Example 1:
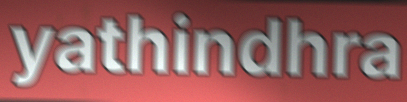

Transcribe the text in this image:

yathindhra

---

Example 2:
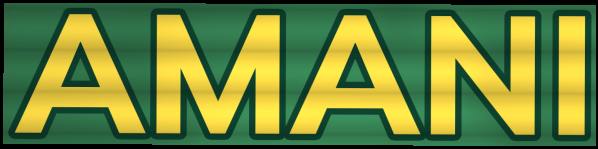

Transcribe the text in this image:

AMANI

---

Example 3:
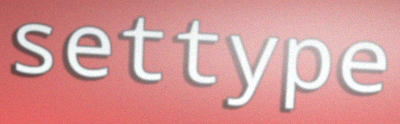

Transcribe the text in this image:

settype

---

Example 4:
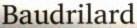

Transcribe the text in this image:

Baudrilard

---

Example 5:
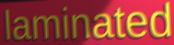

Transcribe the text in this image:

laminated